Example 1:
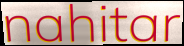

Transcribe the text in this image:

nahitar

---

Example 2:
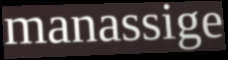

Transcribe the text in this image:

manassige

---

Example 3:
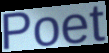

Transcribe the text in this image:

Poet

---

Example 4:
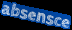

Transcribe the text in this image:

absensce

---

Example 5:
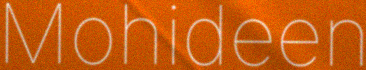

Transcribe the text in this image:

Mohideen